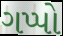
ગપ્પો